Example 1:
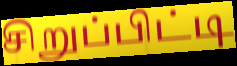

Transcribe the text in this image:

சிறுப்பிட்டி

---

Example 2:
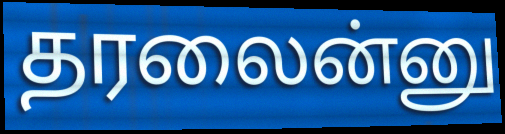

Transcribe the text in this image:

தரலைன்னு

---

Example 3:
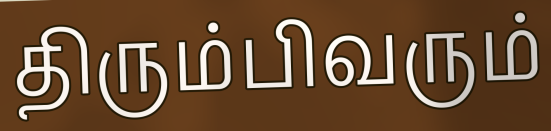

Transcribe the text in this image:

திரும்பிவரும்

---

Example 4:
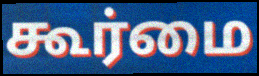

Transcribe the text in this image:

கூர்மை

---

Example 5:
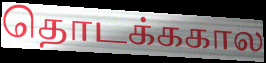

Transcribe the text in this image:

தொடக்ககால